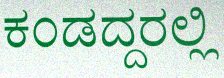
ಕಂಡದ್ದರಲ್ಲಿ